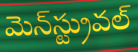
మెన్‌స్ట్రువల్